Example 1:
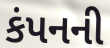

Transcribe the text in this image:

કંપનની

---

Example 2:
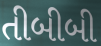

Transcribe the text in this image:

તીબીબી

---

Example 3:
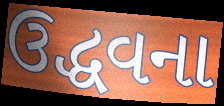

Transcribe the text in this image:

ઉદ્ધવના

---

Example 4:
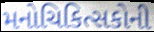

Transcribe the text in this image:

મનોચિકિત્સકોની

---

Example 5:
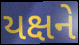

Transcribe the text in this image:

યક્ષને